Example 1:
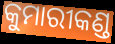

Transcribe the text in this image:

କୁମାରୀକଣ୍ଡ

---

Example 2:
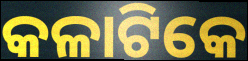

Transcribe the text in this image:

କଳାଟିକେ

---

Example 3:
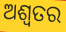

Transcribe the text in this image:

ଅଶ୍ୱତର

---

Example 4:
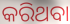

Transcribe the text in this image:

କରିଥବା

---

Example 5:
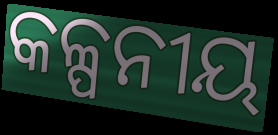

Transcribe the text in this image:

କଳ୍ପନୀୟ